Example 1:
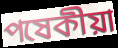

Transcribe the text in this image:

পষেকীয়া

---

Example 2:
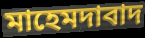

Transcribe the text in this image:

মাহেমদাবাদ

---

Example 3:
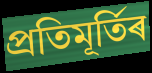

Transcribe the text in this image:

প্ৰতিমূৰ্তিৰ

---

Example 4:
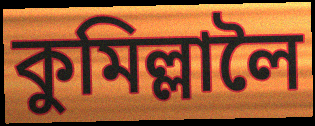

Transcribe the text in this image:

কুমিল্লালৈ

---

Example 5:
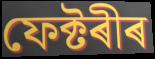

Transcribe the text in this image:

ফেক্টৰীৰ